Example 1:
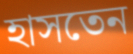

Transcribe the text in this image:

হাসতেন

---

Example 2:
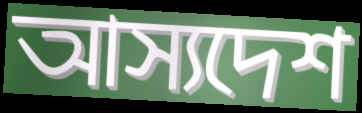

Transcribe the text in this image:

আস্যদেশ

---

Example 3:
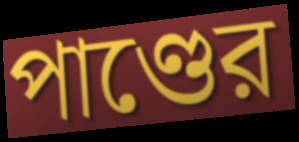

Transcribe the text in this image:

পাণ্ডের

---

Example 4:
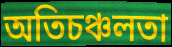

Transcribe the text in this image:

অতিচঞ্চলতা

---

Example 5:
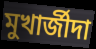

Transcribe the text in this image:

মুখার্জীদা